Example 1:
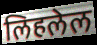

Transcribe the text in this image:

लिहलेल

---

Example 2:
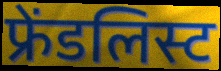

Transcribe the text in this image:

फ्रेंडलिस्ट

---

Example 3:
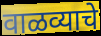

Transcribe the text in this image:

वाळव्याचे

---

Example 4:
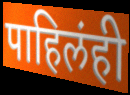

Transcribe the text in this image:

पाहिलंही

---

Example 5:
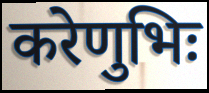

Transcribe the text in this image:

करेणुभिः